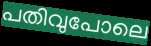
പതിവുപോലെ